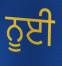
ਨੂਈ